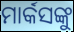
ମାର୍କସଙ୍କୁ